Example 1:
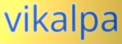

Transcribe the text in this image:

vikalpa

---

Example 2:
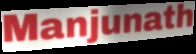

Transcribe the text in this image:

Manjunath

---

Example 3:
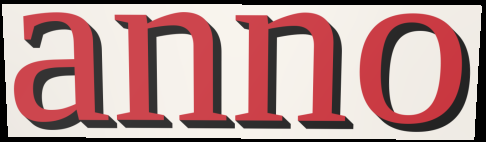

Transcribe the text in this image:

anno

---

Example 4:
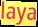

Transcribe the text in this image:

laya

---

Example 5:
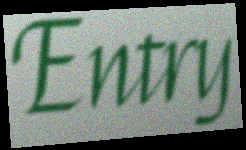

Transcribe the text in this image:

Entry